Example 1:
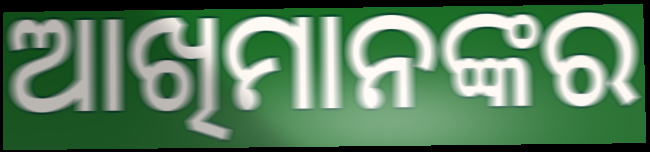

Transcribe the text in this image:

ଆଖିମାନଙ୍କର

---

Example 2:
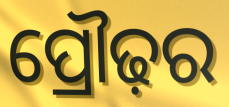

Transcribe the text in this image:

ପ୍ରୌଢ଼ର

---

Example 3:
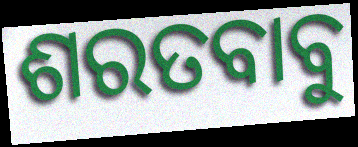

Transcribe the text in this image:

ଶରତବାବୁ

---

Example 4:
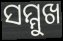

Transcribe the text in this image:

ସମ୍ମୁଖ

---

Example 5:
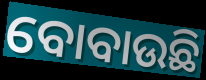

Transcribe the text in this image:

ବୋବାଉଛି